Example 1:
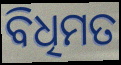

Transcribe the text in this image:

ବିଧିମତ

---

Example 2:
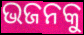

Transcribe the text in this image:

ଭଜନକୁ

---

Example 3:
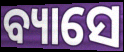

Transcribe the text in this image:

ବ୍ୟାସେ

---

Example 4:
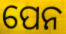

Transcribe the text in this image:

ପେନ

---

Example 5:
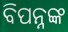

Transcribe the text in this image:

ବିପନ୍ନଙ୍କ